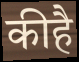
कीहै